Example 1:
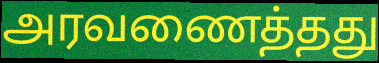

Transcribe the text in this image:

அரவணைத்தது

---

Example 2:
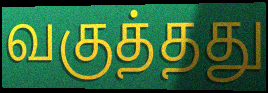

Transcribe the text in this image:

வகுத்தது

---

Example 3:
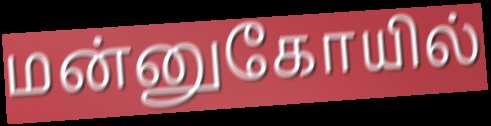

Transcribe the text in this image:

மன்னுகோயில்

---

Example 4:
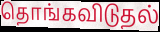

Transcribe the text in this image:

தொங்கவிடுதல்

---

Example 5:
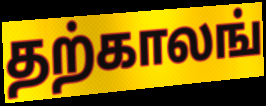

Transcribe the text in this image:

தற்காலங்